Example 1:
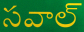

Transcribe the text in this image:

సవాల్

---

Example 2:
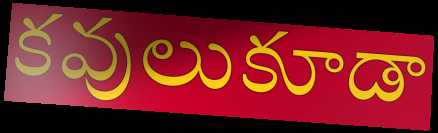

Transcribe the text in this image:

కవులుకూడా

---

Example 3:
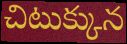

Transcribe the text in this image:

చిటుక్కున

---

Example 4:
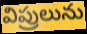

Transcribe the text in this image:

విప్రులును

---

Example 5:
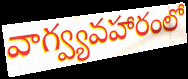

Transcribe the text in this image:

వాగ్వ్యవహారంలో